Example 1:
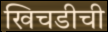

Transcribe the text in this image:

खिचडीची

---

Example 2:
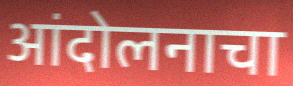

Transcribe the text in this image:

आंदोलनाचा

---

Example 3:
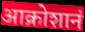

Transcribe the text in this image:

आक्रोशानं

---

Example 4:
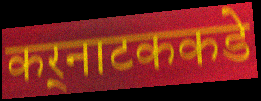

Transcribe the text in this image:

कर्नाटककडे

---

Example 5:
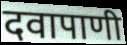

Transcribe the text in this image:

दवापाणी